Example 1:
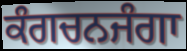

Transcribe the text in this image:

ਕੰਗਚਨਜੰਗਾ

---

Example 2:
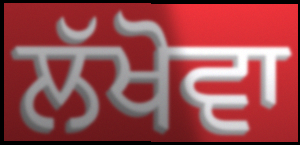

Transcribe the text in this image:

ਲੱਖੋਵਾ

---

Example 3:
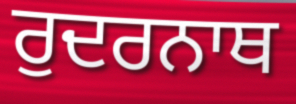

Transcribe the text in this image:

ਰੁਦਰਨਾਥ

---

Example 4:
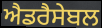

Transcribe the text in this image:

ਐਡਰੈਸੇਬਲ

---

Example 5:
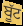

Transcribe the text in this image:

ਬੂੱਟ